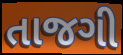
તાજગી